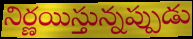
నిర్ణయిస్తున్నప్పుడు